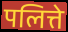
पलित्ते